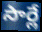
సార్లే